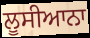
ਲੂਸੀਆਨਾ